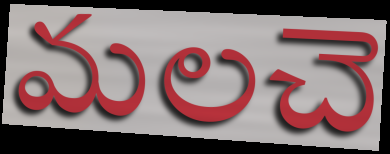
మలచె